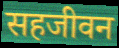
सहजीवन